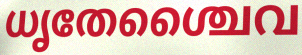
ധൃതേശ്ചൈവ